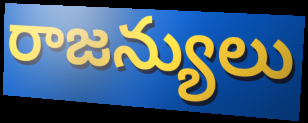
రాజన్యులు